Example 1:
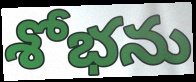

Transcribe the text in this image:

శోభను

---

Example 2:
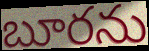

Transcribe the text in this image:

బూరను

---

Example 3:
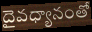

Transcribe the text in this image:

దైవధ్యానంతో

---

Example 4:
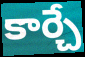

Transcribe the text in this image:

కార్చే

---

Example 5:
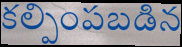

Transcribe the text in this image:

కల్పింపబడిన